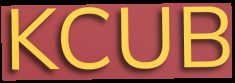
KCUB